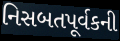
નિસબતપૂર્વકની